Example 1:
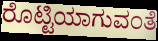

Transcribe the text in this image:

ರೊಟ್ಟಿಯಾಗುವಂತೆ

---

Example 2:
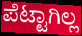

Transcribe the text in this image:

ಪೆಟ್ಟಾಗಿಲ್ಲ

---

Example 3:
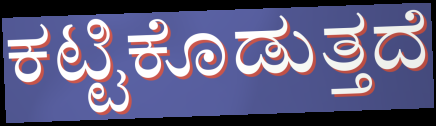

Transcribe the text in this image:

ಕಟ್ಟಿಕೊಡುತ್ತದೆ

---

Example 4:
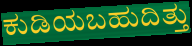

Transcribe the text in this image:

ಕುಡಿಯಬಹುದಿತ್ತು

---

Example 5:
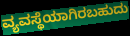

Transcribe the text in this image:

ವ್ಯವಸ್ಥೆಯಾಗಿರಬಹುದು